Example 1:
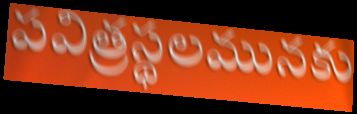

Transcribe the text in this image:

పవిత్రస్థలమునకు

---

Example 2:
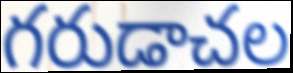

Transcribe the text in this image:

గరుడాచల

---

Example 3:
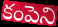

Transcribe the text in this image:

కంపెని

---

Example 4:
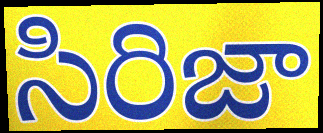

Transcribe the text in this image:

సిరిజా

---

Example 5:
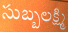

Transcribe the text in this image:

సుబ్బలక్ష్మి